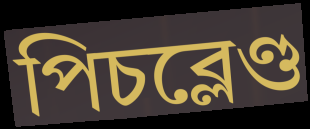
পিচব্লেণ্ড